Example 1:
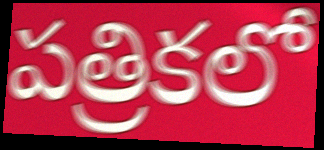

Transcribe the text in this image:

పత్రికలో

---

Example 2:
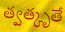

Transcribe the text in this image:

త్వత్కృతే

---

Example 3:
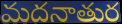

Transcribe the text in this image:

మదనాతుర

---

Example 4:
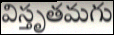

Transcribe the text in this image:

విస్తృతమగు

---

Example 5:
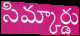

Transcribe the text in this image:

సిమ్కార్డు